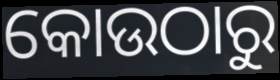
କୋଉଠାରୁ